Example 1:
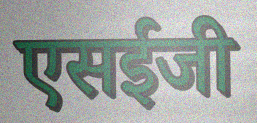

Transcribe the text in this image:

एसईजी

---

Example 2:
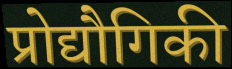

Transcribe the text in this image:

प्रोद्यौगिकी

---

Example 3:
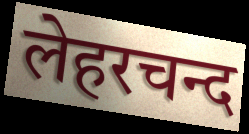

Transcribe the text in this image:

लेहरचन्द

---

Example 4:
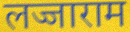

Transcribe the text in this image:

लज्जाराम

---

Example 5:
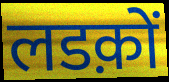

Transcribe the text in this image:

लडक़ों